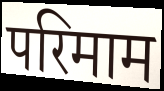
परिमाम